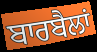
ਬਾਰਬੈਲਾਂ